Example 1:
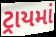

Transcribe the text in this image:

ટ્રાયમાં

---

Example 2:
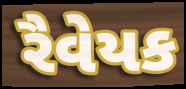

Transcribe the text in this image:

રૈવેયક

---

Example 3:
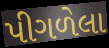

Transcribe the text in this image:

પીગળેલા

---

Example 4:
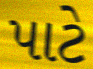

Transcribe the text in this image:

પાટે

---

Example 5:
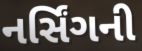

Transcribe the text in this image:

નર્સિંગની